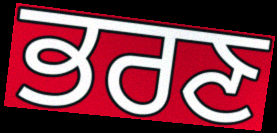
ਭਰਣ